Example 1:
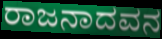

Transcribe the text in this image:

ರಾಜನಾದವನ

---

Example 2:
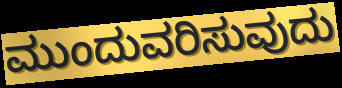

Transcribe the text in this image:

ಮುಂದುವರಿಸುವುದು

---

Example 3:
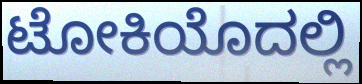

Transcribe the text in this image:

ಟೋಕಿಯೊದಲ್ಲಿ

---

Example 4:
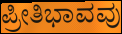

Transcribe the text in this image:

ಪ್ರೀತಿಭಾವವು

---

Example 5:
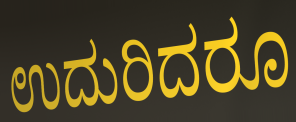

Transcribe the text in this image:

ಉದುರಿದರೂ